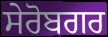
ਸੇਰੋਬਗਰ